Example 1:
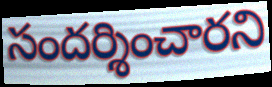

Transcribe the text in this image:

సందర్శించారని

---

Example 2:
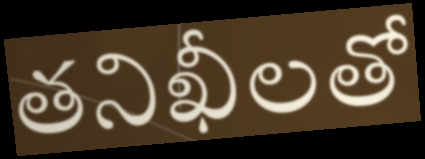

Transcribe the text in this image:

తనిఖీలతో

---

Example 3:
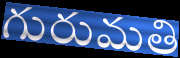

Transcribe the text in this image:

గురుమతి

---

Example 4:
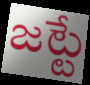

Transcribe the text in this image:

జట్టే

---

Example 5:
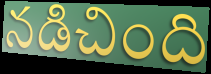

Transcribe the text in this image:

నడిచింది